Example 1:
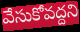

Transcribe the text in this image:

వేసుకోవద్దని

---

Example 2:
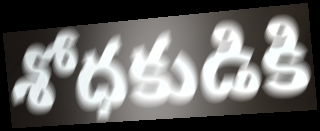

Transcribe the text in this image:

శోధకుడికి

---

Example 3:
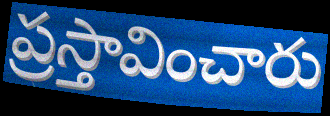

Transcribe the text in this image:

ప్రస్తావించారు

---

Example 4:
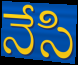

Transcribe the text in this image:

నేసి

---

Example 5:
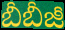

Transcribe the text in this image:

బీబీజీ